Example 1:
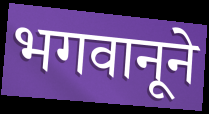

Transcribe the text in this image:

भगवानूने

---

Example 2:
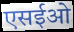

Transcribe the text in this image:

एसईओ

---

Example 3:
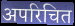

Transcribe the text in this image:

अपरिचित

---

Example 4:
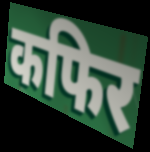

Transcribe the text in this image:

कफिर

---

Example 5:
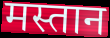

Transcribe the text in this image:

मस्तान